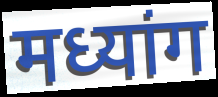
मध्यांग